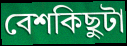
বেশকিছুটা